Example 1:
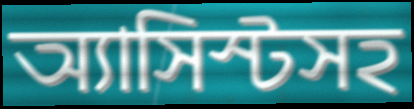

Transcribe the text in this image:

অ্যাসিস্টসহ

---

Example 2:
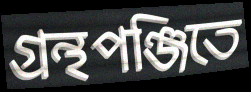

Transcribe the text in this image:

গ্রন্থপঞ্জিতে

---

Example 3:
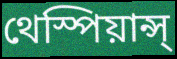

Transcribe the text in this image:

থেস্পিয়ান্স্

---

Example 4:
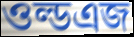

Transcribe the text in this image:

ওল্ডএজ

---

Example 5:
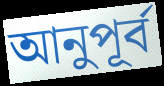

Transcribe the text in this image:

আনুপূর্ব